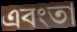
এবংতা